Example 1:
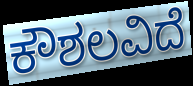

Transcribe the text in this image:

ಕೌಶಲವಿದೆ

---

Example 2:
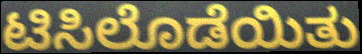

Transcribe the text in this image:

ಟಿಸಿಲೊಡೆಯಿತು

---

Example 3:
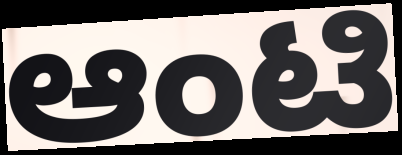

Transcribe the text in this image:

ಆಂಟಿ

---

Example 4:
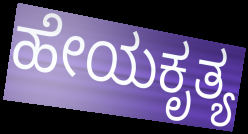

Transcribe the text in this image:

ಹೇಯಕೃತ್ಯ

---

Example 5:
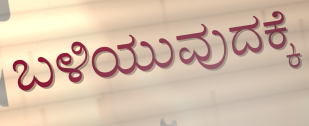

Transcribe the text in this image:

ಬಳಿಯುವುದಕ್ಕೆ